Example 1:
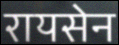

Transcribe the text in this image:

रायसेन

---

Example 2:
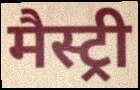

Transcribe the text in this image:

मैस्ट्री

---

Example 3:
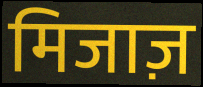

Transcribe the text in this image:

मिजाज़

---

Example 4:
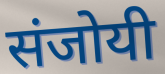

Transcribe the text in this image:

संजोयी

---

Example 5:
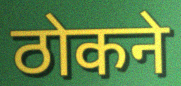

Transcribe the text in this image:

ठोकने